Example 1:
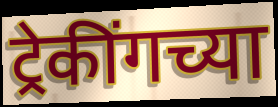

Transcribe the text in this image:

ट्रेकींगच्या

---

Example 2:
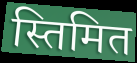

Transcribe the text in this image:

स्तिमित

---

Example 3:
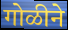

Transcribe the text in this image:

गोळीने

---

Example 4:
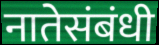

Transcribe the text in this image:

नातेसंबंधी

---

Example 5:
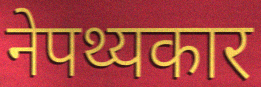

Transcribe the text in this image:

नेपथ्यकार